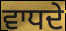
ਵਾਧਦੇ